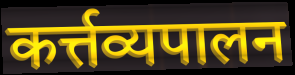
कर्त्तव्यपालन